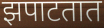
झपाटतात